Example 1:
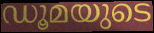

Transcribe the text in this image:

ഡൂമയുടെ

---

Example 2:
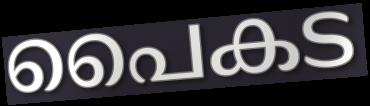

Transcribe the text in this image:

പൈകട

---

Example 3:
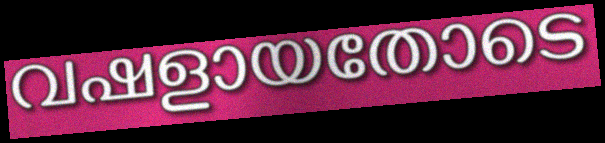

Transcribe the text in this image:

വഷളായതോടെ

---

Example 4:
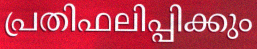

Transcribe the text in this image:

പ്രതിഫലിപ്പിക്കും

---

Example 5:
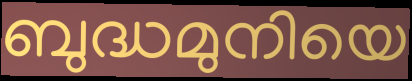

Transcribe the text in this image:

ബുദ്ധമുനിയെ